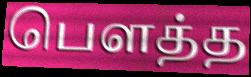
பௌத்த